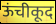
ऊंचीकूद